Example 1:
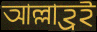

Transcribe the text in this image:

আল্লাহ্রই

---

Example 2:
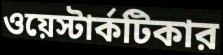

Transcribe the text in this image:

ওয়েস্টার্কটিকার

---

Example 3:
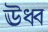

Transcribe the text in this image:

ঊধ্ব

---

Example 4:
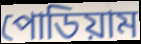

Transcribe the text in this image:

পোডিয়াম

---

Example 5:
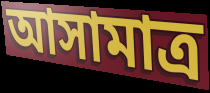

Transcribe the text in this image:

আসামাত্র